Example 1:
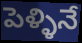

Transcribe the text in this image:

పెళ్ళినే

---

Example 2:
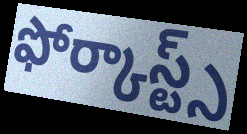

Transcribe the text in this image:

ఫోర్కాస్ట్స్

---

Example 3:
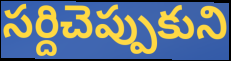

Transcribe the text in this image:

సర్దిచెప్పుకుని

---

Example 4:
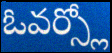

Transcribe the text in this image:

ఓవర్స్లో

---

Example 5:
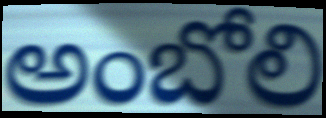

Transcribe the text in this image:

అంబోలి